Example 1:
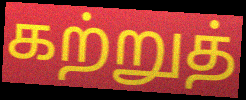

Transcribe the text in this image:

கற்றுத்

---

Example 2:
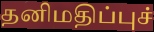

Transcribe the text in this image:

தனிமதிப்புச்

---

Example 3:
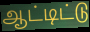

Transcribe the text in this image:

ஆட்டிட்டு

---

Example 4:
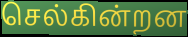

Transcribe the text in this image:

செல்கின்றன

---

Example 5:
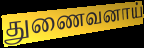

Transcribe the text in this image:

துணைவனாய்